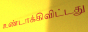
உண்டாக்கிவிட்டது